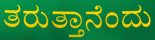
ತರುತ್ತಾನೆಂದು